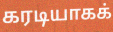
கரடியாகக்